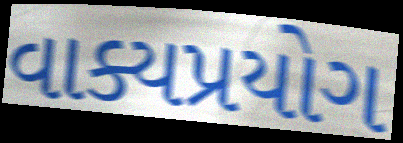
વાક્યપ્રયોગ